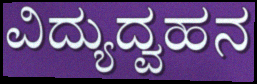
ವಿದ್ಯುದ್ವಹನ